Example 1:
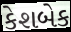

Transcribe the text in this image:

કેશબેક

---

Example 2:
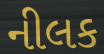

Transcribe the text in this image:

નીલક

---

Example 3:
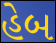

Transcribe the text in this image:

હેબ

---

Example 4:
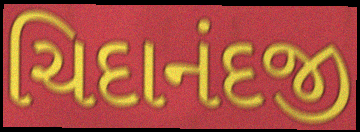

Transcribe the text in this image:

ચિદાનંદજી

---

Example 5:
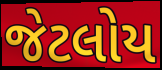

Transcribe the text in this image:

જેટલોય